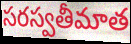
సరస్వతీమాత